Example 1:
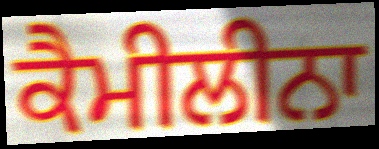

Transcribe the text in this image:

ਕੈਮੀਲੀਨਾ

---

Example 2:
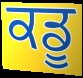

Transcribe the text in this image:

ਕਡੂ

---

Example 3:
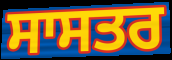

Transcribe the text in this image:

ਸਾਸਤਰ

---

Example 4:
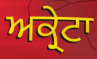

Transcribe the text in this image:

ਅਕ੍ਰੇਟਾ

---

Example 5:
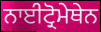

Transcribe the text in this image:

ਨਾਈਟ੍ਰੋਮੇਥੇਨ